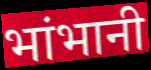
भांभानी